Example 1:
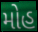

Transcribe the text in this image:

મોહ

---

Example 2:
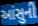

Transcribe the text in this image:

આંસુની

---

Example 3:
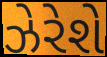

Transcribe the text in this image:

ઝેરેશે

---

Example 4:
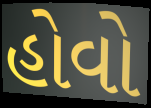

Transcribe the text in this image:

હોવો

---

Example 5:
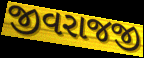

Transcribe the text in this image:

જીવરાજજી